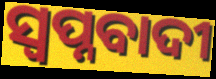
ସ୍ୱପ୍ନବାଦୀ